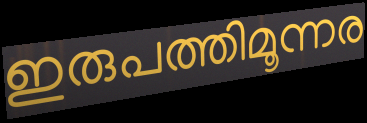
ഇരുപത്തിമൂന്നര